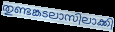
തുണ്ടങ്കടലാസിലാക്കി